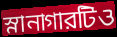
স্নানাগারটিও